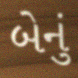
બેનું